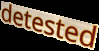
detested